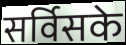
सर्विसके